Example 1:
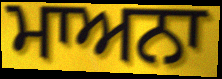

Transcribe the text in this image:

ਮਾਅਨਾ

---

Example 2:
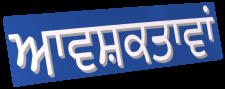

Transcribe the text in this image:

ਆਵਸ਼ਕਤਾਵਾਂ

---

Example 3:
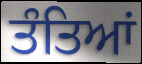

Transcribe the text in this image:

ਤੰਤਿਆਂ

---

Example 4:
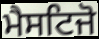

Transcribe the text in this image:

ਮੈਸਟਿਜੋ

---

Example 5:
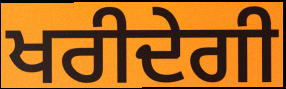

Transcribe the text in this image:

ਖਰੀਦੇਗੀ